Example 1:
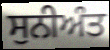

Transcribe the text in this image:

ਸੁਨੀਅੰਤ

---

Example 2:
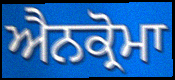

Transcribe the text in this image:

ਐਨਕ੍ਰੋਮਾ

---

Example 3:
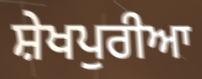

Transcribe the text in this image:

ਸ਼ੇਖਪੁਰੀਆ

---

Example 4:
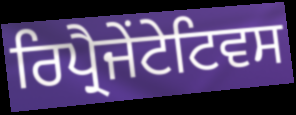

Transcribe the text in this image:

ਰਿਪ੍ਰੈਜੇਂਟੇਟਿਵਸ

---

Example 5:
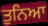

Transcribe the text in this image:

ਤੁਨਿਆ